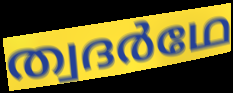
ത്വദർഥേ